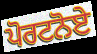
ਪੋਰਟਨੋਏ